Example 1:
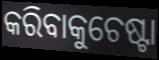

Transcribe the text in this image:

କରିବାକୁଚେଷ୍ଟା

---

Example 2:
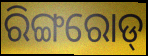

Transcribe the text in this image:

ରିଙ୍ଗରୋଡ୍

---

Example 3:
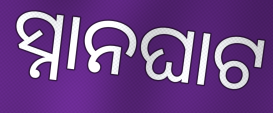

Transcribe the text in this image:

ସ୍ନାନଘାଟ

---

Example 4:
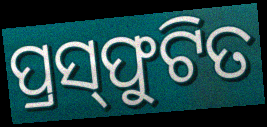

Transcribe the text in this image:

ପ୍ରସ୍‌ଫୁଟିତ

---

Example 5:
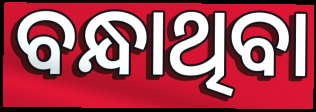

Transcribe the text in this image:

ବନ୍ଧାଥିବା